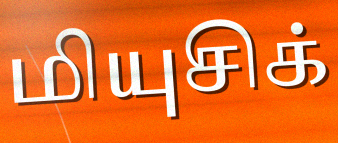
மியுசிக்